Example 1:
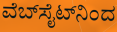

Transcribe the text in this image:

ವೆಬ್‍ಸೈಟ್‍ನಿಂದ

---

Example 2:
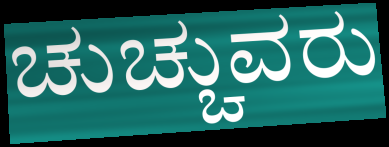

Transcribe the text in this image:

ಚುಚ್ಚುವರು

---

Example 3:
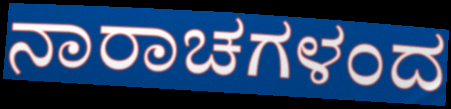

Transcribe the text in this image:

ನಾರಾಚಗಳಂದ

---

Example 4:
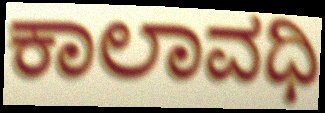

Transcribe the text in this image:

ಕಾಲಾವಧಿ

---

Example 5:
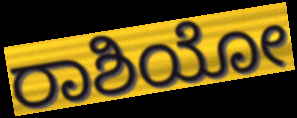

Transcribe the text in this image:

ರಾಶಿಯೋ